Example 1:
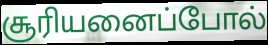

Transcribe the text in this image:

சூரியனைப்போல்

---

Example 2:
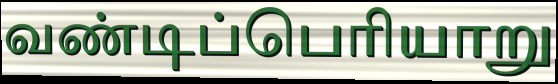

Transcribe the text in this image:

வண்டிப்பெரியாறு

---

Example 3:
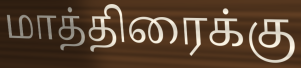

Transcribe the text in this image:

மாத்திரைக்கு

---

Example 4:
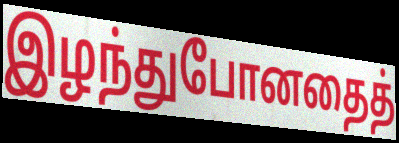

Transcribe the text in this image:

இழந்துபோனதைத்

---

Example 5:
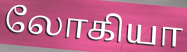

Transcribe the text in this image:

லோகியா